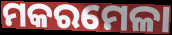
ମକରମେଳା